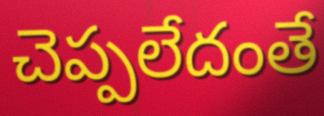
చెప్పలేదంతే